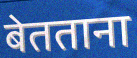
बेतताना